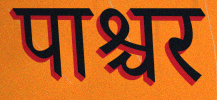
पाश्चर